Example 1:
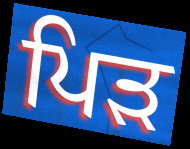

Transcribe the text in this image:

ਪਿੜ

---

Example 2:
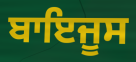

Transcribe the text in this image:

ਬਾਇਜੂਸ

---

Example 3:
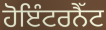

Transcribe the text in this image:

ਹੋਇੰਟਰਨੈੱਟ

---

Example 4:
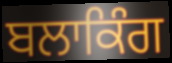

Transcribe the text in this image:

ਬਲਾਕਿੰਗ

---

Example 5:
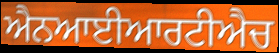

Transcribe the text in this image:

ਐਨਆਈਆਰਟੀਐਚ